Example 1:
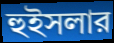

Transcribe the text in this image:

হুইসলার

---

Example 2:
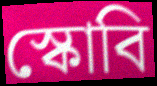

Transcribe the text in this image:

স্কোবি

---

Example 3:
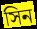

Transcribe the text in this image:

সিন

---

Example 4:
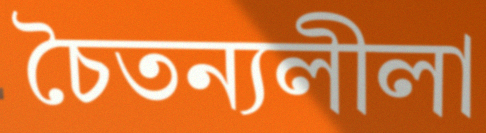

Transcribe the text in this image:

চৈতন্যলীলা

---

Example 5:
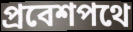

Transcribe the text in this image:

প্রবেশপথে